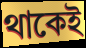
থাকেই